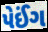
પેઈંગ